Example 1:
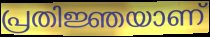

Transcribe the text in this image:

പ്രതിജ്ഞയാണ്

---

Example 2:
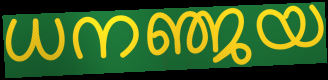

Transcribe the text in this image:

ധനഞ്ജയ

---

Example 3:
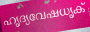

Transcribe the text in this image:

ഹൃദ്യവേഷധൃക്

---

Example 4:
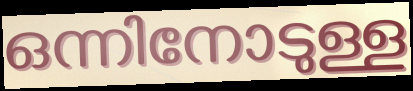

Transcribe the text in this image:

ഒന്നിനോടുള്ള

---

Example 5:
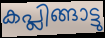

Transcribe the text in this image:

കപ്ലിങ്ങാട്ടു